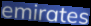
emirates